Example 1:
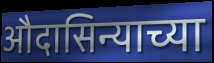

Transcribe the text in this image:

औदासिन्याच्या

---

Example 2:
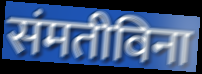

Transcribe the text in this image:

संमतीविना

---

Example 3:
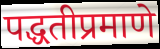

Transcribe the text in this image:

पद्धतीप्रमाणे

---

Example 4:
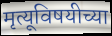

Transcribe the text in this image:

मृत्यूविषयीच्या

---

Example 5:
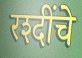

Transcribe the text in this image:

रश्दींचे